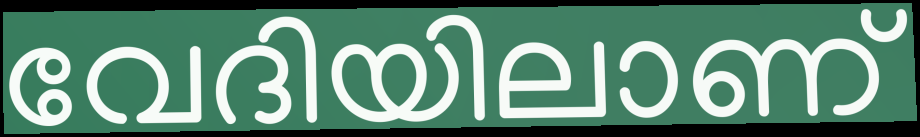
വേദിയിലാണ്